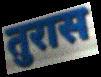
तुरास